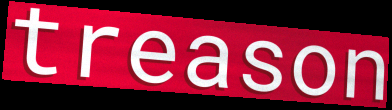
treason